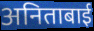
अनिताबाई